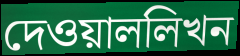
দেওয়াললিখন